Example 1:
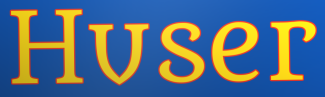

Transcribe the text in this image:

Huser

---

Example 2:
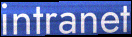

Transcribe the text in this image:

intranet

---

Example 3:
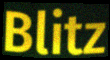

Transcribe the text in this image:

Blitz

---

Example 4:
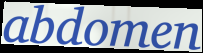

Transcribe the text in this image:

abdomen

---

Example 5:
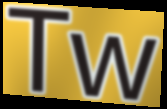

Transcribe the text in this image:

Tw